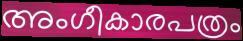
അംഗീകാരപത്രം